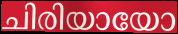
ചിരിയായോ